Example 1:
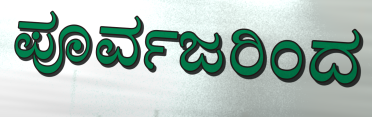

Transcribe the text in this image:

ಪೂರ್ವಜರಿಂದ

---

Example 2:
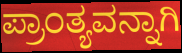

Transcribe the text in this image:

ಪ್ರಾಂತ್ಯವನ್ನಾಗಿ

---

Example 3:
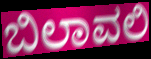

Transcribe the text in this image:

ಬಿಲಾವಲಿ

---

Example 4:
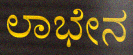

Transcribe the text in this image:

ಲಾಭೇನ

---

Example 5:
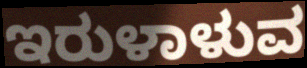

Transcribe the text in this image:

ಇರುಳಾಳುವ